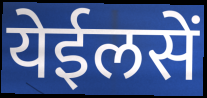
येईलसें